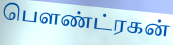
பௌண்ட்ரகன்